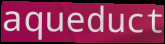
aqueduct